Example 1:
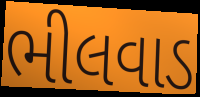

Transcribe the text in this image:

ભીલવાડ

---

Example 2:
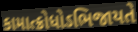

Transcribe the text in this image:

કામાત્ક્રોધોઽભિજાયતે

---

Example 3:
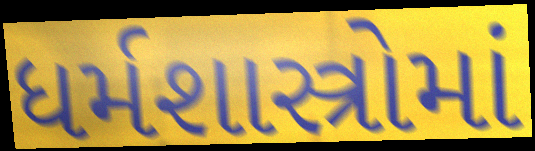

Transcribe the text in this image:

ધર્મશાસ્ત્રોમાં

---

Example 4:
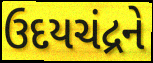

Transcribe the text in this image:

ઉદયચંદ્રને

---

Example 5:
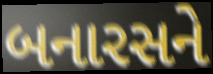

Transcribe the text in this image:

બનારસને